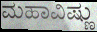
ಮಹಾವಿಷ್ಣು